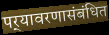
पर्यावरणासंबंधित